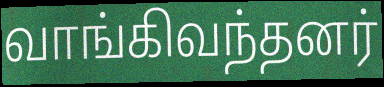
வாங்கிவந்தனர்